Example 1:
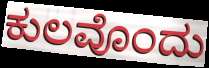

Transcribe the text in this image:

ಕುಲವೊಂದು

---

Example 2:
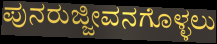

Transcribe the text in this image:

ಪುನರುಜ್ಜೀವನಗೊಳ್ಳಲು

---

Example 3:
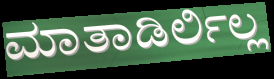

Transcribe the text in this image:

ಮಾತಾಡಿರ್ಲಿಲ್ಲ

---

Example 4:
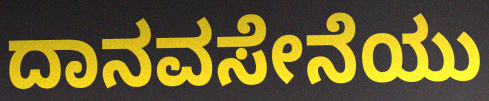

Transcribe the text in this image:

ದಾನವಸೇನೆಯು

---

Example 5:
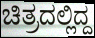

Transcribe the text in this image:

ಚಿತ್ರದಲ್ಲಿದ್ದ